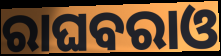
ରାଘବରାଓ